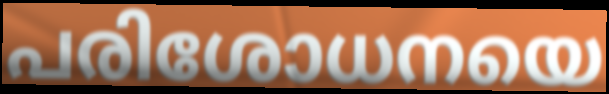
പരിശോധനയെ